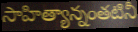
సాహిత్యాన్నంతటినీ